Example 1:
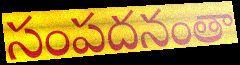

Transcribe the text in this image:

సంపదనంతా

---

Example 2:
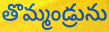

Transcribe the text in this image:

తొమ్మండ్రును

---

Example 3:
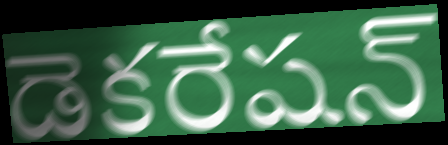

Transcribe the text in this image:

డెకరేషన్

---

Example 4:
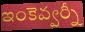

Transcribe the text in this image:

ఇంకెవ్వర్నీ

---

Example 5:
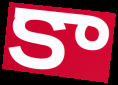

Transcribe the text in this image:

కా